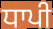
ਧਾਪੀ